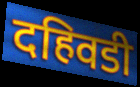
दहिवडी